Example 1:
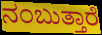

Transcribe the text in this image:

ನಂಬುತ್ತಾರೆ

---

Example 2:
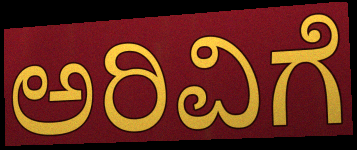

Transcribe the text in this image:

ಅರಿವಿಗೆ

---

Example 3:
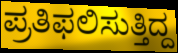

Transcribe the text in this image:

ಪ್ರತಿಫಲಿಸುತ್ತಿದ್ದ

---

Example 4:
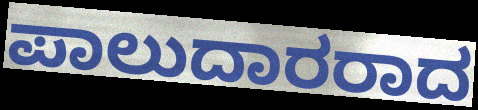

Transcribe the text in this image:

ಪಾಲುದಾರರಾದ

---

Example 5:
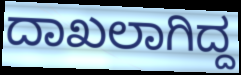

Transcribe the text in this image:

ದಾಖಲಾಗಿದ್ದ